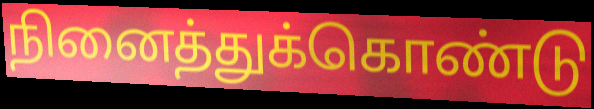
நினைத்துக்கொண்டு